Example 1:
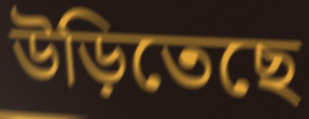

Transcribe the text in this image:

উড়িতেছে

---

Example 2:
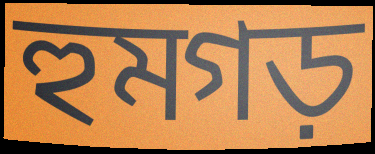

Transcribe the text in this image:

হুমগড়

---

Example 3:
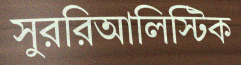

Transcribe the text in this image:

সুররিআলিস্টিক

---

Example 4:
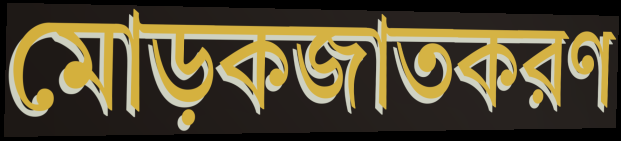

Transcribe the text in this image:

মোড়কজাতকরণ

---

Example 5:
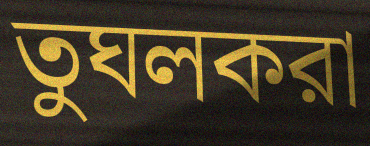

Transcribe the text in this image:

তুঘলকরা